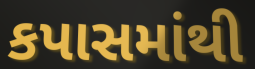
કપાસમાંથી